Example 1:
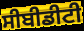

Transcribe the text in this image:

ਸੀਬੀਡੀਟੀ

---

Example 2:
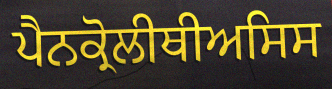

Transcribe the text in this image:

ਪੈਨਕ੍ਰੋਲੀਥੀਅਸਿਸ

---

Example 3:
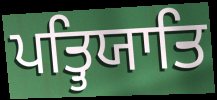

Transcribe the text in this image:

ਪਤ੍ਤਿਯਾਤਿ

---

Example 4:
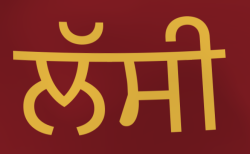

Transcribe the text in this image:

ਲੱਸੀ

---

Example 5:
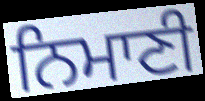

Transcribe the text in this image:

ਨਿਮਾਣੀ